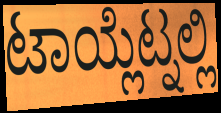
ಟಾಯ್ಲೆಟ್ನಲ್ಲಿ